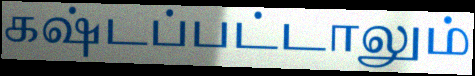
கஷ்டப்பட்டாலும்